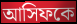
আসিফকে